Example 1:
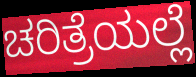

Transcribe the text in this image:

ಚರಿತ್ರೆಯಲ್ಲೆ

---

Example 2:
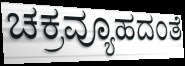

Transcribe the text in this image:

ಚಕ್ರವ್ಯೂಹದಂತೆ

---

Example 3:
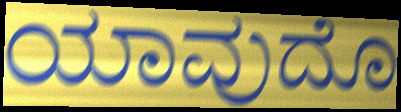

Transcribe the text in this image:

ಯಾವುದೊ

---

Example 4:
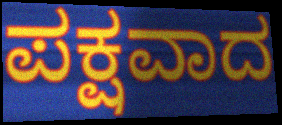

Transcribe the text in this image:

ಪಕ್ಷವಾದ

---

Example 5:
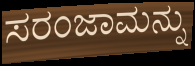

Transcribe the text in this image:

ಸರಂಜಾಮನ್ನು